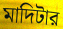
মাদিটার